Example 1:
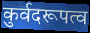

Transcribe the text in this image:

कुर्वदरूपत्व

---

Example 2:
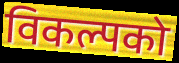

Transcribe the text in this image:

विकल्पको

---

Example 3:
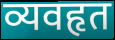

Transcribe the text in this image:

व्यवहृत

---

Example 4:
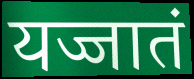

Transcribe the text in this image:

यज्जातं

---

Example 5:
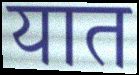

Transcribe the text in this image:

यात